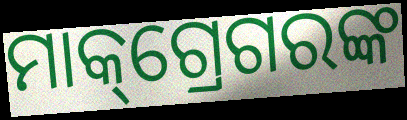
ମାକ୍‌ଗ୍ରେଗରଙ୍କ